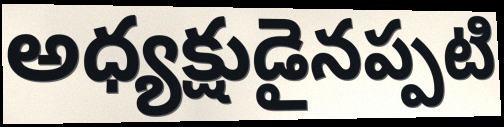
అధ్యక్షుడైనప్పటి